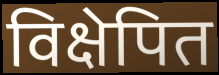
विक्षेपित